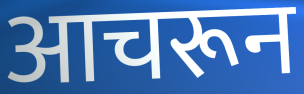
आचरून